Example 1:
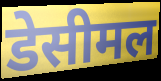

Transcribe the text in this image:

डेसीमल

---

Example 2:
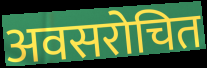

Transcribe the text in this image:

अवसरोचित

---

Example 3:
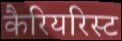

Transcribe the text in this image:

कैरियरिस्ट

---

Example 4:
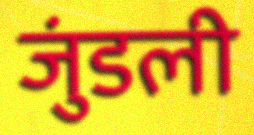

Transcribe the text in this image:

जुंडली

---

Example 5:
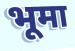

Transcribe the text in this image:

भूमा